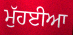
ਮੁੱਹਈਆ